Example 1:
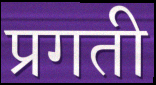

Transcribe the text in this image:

प्रगती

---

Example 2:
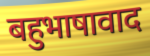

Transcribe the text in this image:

बहुभाषावाद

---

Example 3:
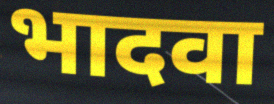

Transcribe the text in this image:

भादवा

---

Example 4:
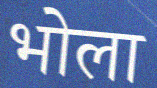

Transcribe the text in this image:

भोला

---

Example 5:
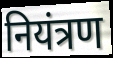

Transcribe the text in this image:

नियंत्रण